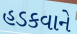
હડકવાને